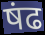
षंढ